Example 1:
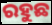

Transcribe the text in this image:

ରହୁଛ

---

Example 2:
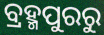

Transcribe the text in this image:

ବ୍ରହ୍ମପୁରରୁ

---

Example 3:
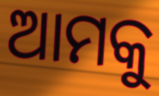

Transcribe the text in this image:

ଆମକୁ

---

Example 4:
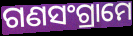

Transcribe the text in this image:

ଗଣସଂଗ୍ରାମେ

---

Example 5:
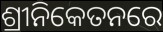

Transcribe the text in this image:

ଶ୍ରୀନିକେତନରେ